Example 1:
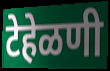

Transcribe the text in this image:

टेहेळणी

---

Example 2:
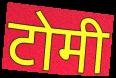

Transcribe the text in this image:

टोमी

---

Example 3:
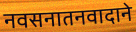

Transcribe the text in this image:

नवसनातनवादाने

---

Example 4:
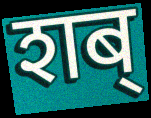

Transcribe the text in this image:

शब्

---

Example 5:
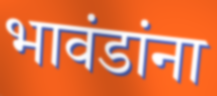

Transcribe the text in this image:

भावंडांना